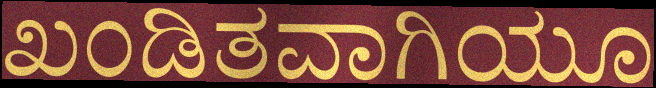
ಖಂಡಿತವಾಗಿಯೂ